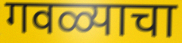
गवळ्याचा